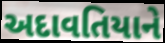
અદાવતિયાને